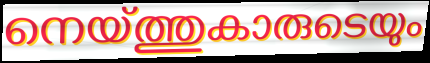
നെയ്ത്തുകാരുടെയും